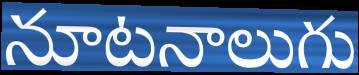
నూటనాలుగు